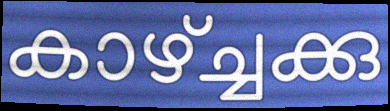
കാഴ്ച്ചക്കു